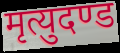
मृत्युदण्ड